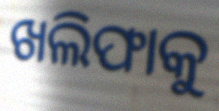
ଖଲିଫାକୁ